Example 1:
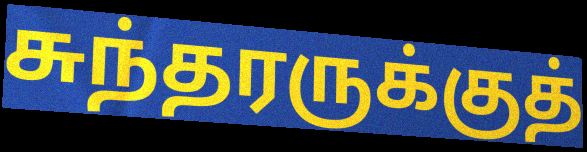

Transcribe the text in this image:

சுந்தரருக்குத்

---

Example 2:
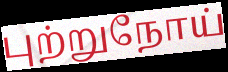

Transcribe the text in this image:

புற்றுநோய்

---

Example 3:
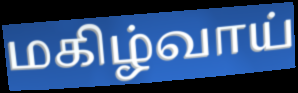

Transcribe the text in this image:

மகிழ்வாய்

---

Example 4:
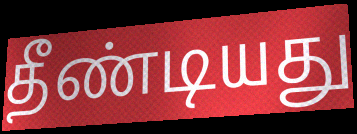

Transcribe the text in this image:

தீண்டியது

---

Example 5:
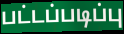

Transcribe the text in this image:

பட்டப்படிப்பு